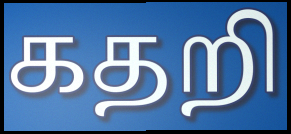
கதறி